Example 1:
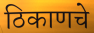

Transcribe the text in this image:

ठिकाणचे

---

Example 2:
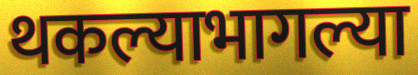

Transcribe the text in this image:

थकल्याभागल्या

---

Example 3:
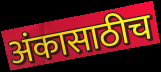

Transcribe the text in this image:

अंकासाठीच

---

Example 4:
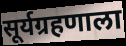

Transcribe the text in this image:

सूर्यग्रहणाला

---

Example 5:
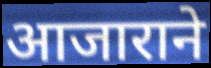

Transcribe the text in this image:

आजाराने